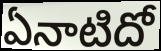
ఏనాటిదో